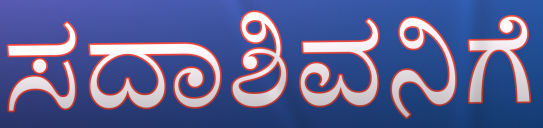
ಸದಾಶಿವನಿಗೆ